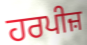
ਹਰਪੀਜ਼